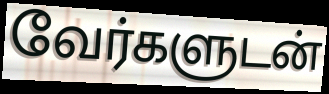
வேர்களுடன்